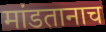
मांडतानाच